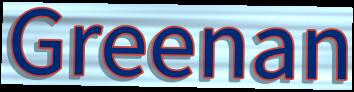
Greenan